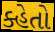
ક્હેતો